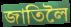
জাতিলৈ